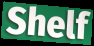
Shelf